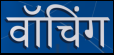
वॉचिंग